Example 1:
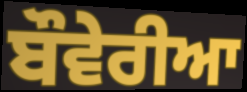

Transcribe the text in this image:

ਬੌਵੇਰੀਆ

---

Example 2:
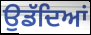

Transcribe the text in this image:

ਉਡੱਦਿਆਂ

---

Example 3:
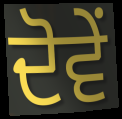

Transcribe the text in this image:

ਦੋਵੇਂ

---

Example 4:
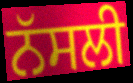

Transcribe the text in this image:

ਨੱਸਲੀ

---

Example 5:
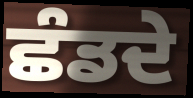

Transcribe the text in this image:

ਛੰਡਦੇ